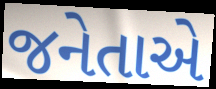
જનેતાએ